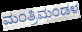
ಮಂತ್ರಿಮಂಡಳ